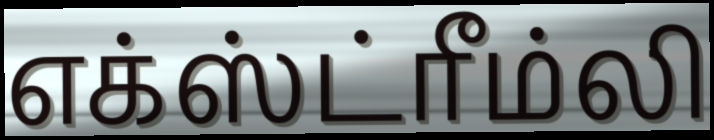
எக்ஸ்ட்ரீம்லி